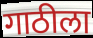
गाठीला